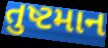
તુષ્ટમાન